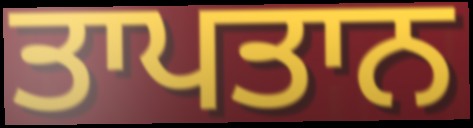
ਤਾਪਤਾਨ